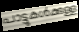
പാട്ടുകൾക്കുള്ള